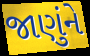
જાણુંને